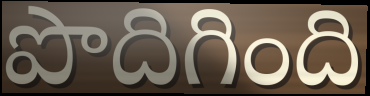
పొదిగింది